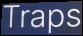
Traps